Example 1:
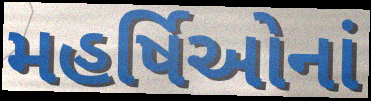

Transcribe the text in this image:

મહર્ષિઓનાં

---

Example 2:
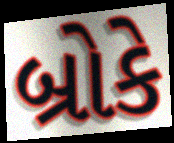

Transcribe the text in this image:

બ્રોકે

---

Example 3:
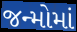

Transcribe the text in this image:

જન્મોમાં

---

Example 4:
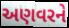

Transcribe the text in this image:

અણવરને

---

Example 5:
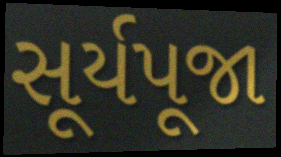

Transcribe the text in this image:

સૂર્યપૂજા